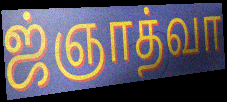
ஜ்ஞாத்வா